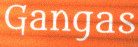
Gangas